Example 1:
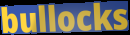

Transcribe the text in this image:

bullocks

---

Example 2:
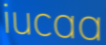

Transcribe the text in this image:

iucaa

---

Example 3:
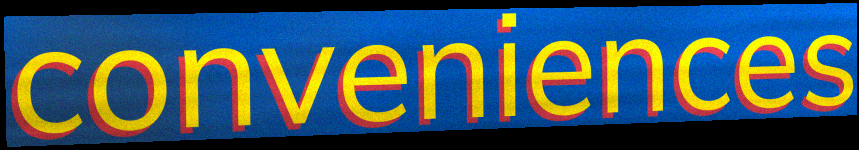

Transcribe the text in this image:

conveniences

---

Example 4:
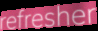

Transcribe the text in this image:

refresher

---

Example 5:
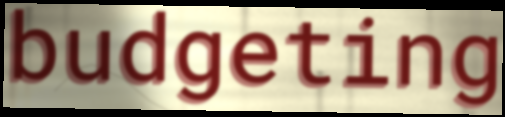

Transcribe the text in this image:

budgeting